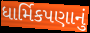
ધાર્મિકપણાનું